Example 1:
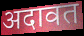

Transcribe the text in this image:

अदावत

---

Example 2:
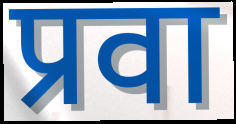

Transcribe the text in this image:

प्रवा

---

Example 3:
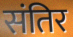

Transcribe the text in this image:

संतिर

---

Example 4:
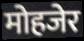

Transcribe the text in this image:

मोहजेर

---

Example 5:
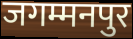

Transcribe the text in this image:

जगम्मनपुर